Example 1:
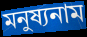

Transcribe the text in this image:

মনুষ্যনাম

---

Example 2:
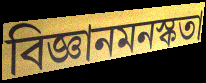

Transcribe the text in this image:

বিজ্ঞানমনস্কতা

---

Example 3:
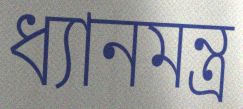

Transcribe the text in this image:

ধ্যানমন্ত্র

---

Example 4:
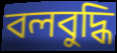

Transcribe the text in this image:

বলবুদ্ধি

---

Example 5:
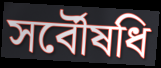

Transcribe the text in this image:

সর্বৌষধি